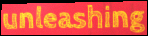
unleashing